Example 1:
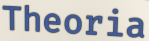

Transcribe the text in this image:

Theoria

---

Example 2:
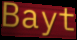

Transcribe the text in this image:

Bayt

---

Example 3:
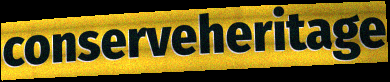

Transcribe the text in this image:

conserveheritage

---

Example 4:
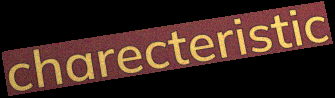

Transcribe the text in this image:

charecteristic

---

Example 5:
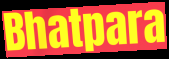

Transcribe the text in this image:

Bhatpara